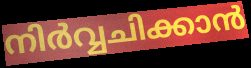
നിർവ്വചിക്കാൻ